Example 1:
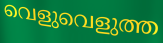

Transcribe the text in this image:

വെളുവെളുത്ത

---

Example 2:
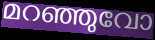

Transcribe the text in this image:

മറഞ്ഞുവോ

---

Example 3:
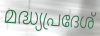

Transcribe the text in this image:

മദ്ധ്യപ്രദേശ്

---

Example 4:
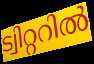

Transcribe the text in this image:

ട്വിറ്ററിൽ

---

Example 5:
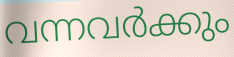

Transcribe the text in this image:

വന്നവർക്കും